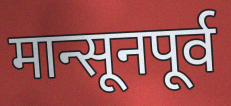
मान्सूनपूर्व